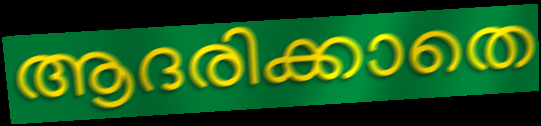
ആദരിക്കാതെ